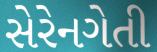
સેરેનગેતી